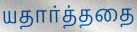
யதார்த்ததை